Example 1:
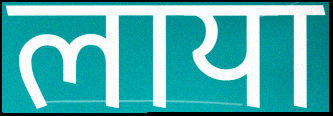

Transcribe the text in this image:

लाया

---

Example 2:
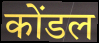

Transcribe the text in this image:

कोंडल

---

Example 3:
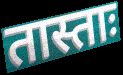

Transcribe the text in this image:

तास्ताः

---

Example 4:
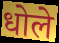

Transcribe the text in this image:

धोले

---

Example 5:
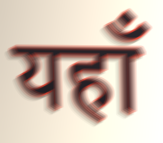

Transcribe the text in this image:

यहाँ